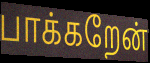
பாக்கறேன்